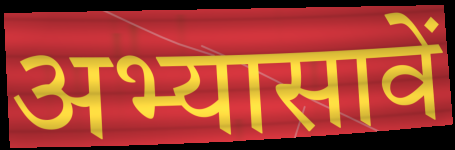
अभ्यासावें